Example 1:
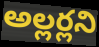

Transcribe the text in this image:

అల్లర్లని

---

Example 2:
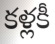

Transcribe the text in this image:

కళ్లకీ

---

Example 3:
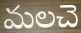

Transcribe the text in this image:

మలచె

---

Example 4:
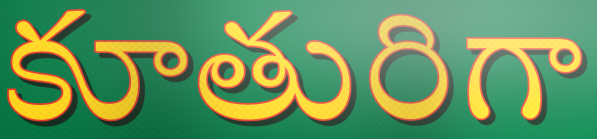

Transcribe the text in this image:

కూతురిగా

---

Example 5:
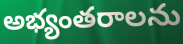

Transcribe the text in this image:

అభ్యంతరాలను